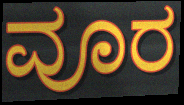
ವೂರ